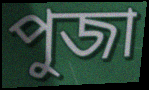
পুজা